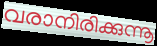
വരാനിരിക്കുന്നൂ